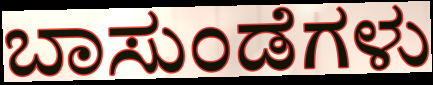
ಬಾಸುಂಡೆಗಳು